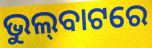
ଭୁଲ୍‌ବାଟରେ